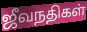
ஜீவநதிகள்